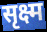
सृक्ष्म